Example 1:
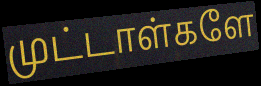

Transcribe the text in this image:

முட்டாள்களே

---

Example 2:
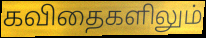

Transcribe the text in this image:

கவிதைகளிலும்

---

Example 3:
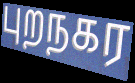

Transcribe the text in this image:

புறநகர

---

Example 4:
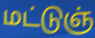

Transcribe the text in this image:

மட்டுஞ்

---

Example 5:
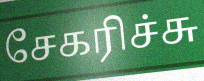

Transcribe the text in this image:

சேகரிச்சு